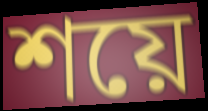
শয়ে